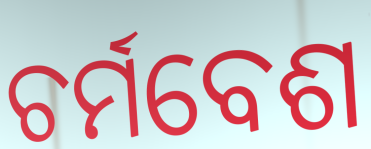
ଚର୍ମବେଶ